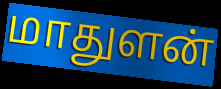
மாதுளன்